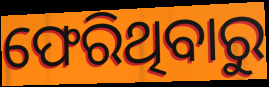
ଫେରିଥିବାରୁ